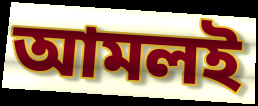
আমলই